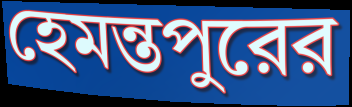
হেমন্তপুরের